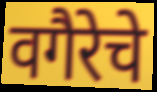
वगैरेचे